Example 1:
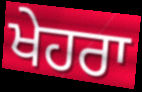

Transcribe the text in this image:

ਖੇਹਰਾ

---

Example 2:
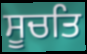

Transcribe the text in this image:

ਸੂਚਤਿ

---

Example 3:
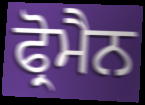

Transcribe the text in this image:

ਫ੍ਰੋਮੈਨ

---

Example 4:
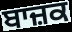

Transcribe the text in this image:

ਬਾਜ਼ਕ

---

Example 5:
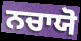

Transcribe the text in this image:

ਨਚਾਯੋ